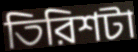
তিরিশটা